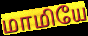
மாமியே